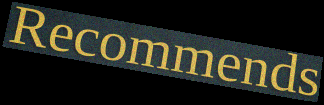
Recommends